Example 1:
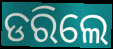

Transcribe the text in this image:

ଡରିଲେ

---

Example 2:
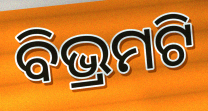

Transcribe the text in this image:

ବିଭ୍ରମଟି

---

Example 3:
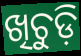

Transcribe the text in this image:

ଖିଚୁଡ଼ି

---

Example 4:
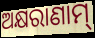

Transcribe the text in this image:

ଅକ୍ଷରାଣାମ୍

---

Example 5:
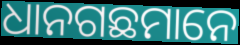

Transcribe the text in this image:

ଧାନଗଛମାନେ